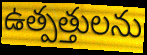
ఉత్పత్తులను